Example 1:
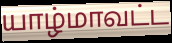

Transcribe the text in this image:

யாழ்மாவட்ட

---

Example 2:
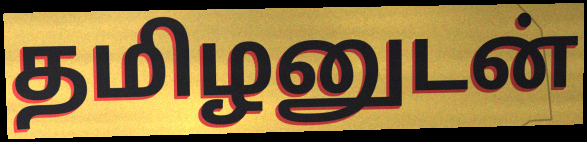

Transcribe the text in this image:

தமிழனுடன்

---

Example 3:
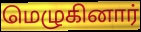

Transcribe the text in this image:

மெழுகினார்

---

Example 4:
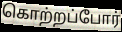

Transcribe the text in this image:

கொற்றப்போர்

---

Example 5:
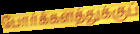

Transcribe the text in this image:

போர்க்களத்துக்குப்